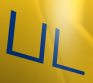
பட